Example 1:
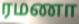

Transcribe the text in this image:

ரமணா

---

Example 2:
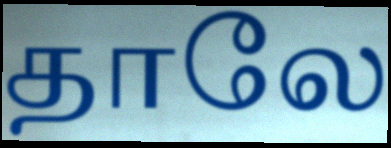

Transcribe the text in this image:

தாலே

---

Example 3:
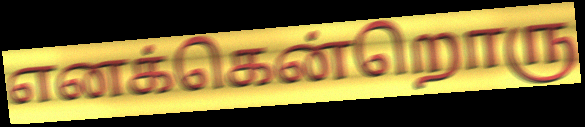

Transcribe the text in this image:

எனக்கென்றொரு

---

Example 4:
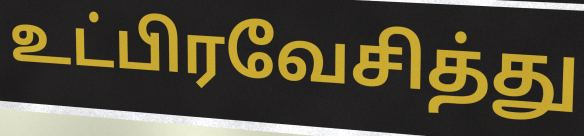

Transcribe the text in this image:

உட்பிரவேசித்து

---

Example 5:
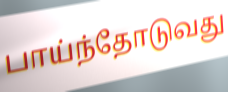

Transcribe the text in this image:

பாய்ந்தோடுவது